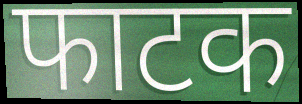
फाटक